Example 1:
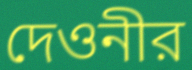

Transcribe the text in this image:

দেওনীর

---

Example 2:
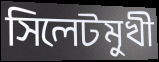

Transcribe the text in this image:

সিলেটমুখী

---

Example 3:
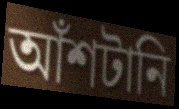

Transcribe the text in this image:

আঁশটানি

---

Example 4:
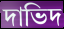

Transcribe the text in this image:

দাভিদ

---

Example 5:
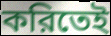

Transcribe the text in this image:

করিতেই